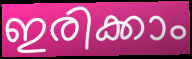
ഇരിക്കാം